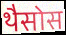
थैसोस